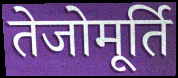
तेजोमूर्ति